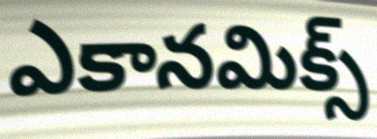
ఎకానమిక్స్